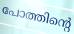
പോത്തിന്റെ